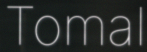
Tomal